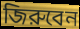
জিরুবেন